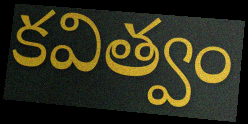
కవిత్వం